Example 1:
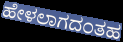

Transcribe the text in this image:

ಹೇಳಲಾಗದಂತಹ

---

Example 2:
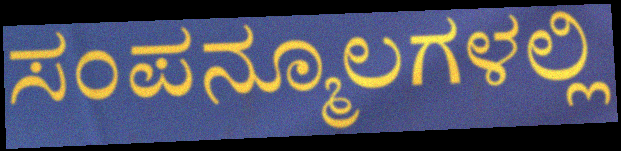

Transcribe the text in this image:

ಸಂಪನ್ಮೂಲಗಳಲ್ಲಿ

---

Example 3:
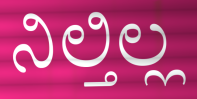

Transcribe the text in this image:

ನಿಲ್ತಿಲ್ಲ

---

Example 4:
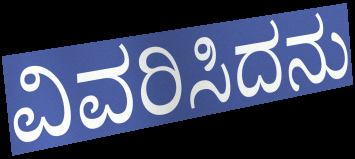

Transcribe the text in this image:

ವಿವರಿಸಿದನು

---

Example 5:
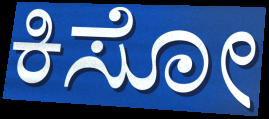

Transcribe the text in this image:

ಕಿಸೋ